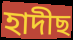
হাদীছ